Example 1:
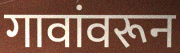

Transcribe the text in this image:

गावांवरून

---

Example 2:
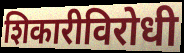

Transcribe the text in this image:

शिकारीविरोधी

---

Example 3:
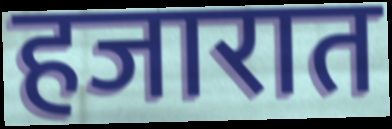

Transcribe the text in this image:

हजारात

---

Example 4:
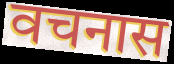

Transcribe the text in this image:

वचनास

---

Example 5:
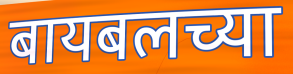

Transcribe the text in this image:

बायबलच्या